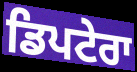
ਡਿਪਟੇਰਾ